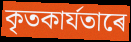
কৃতকাৰ্যতাৰে